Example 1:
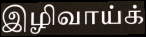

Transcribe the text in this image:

இழிவாய்க்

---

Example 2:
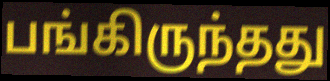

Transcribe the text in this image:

பங்கிருந்தது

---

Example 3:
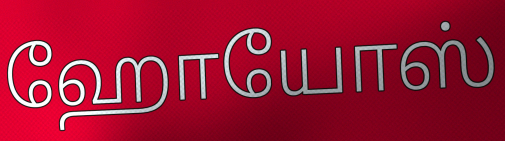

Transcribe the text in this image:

ஹோயோஸ்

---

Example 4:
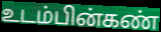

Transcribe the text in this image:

உடம்பின்கண்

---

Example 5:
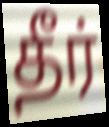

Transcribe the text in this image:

தீர்